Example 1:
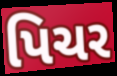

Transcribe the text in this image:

પિચર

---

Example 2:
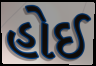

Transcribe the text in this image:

હોઈ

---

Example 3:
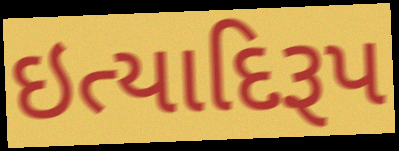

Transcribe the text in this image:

ઇત્યાદિરૂપ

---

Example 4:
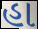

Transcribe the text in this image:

હા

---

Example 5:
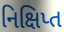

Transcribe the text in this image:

નિક્ષિપ્ત